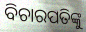
ବିଚାରପତିଙ୍କୁ